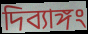
দিব্যাঙ্গং